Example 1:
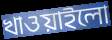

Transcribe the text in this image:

খাওয়াইলো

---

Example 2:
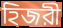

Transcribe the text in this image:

হিজরী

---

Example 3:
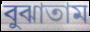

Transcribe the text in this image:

বুঝাতাম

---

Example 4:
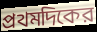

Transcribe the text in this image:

প্রথমদিকের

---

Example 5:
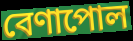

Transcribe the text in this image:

বেণাপোল